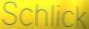
Schlick